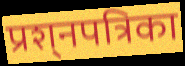
प्रश्नपत्रिका